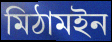
মিঠামইন